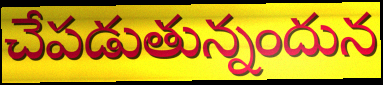
చేపడుతున్నందున